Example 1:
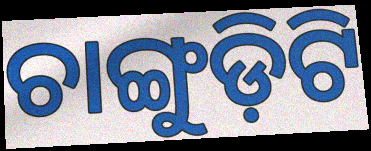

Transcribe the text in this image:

ଚାଙ୍ଗୁଡ଼ିଟି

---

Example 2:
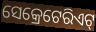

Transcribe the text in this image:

ସେକ୍ରେଟେରିଏଟ୍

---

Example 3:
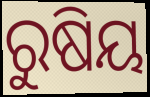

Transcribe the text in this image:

ରୁଷିୟ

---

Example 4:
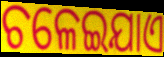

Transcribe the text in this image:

ଚଳେଇଯାଏ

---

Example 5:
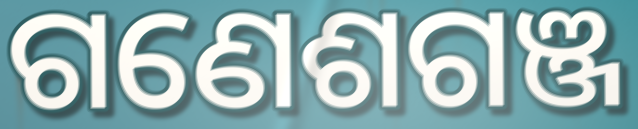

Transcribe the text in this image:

ଗଣେଶଗଞ୍ଜ